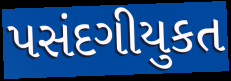
પસંદગીયુકત